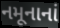
નમૂનાનાં